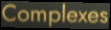
Complexes